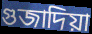
গুজাদিয়া